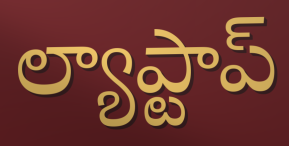
ల్యాప్టాప్